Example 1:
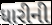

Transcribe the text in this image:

ધારીની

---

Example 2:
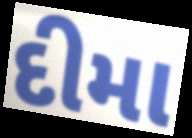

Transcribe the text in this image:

દીમા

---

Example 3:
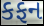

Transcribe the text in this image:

કફન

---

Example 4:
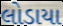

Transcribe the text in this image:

લોડાયા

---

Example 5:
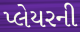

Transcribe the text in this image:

પ્લેયરની